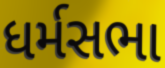
ધર્મસભા